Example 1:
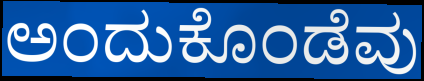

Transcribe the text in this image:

ಅಂದುಕೊಂಡೆವು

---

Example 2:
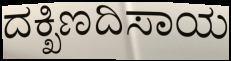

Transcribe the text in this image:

ದಕ್ಖಿಣದಿಸಾಯ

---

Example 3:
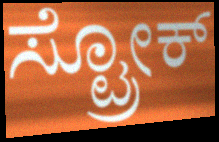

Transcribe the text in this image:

ಸ್ಟ್ರೋಕ್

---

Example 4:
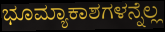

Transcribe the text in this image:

ಭೂಮ್ಯಾಕಾಶಗಳನ್ನೆಲ್ಲ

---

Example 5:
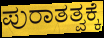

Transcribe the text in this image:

ಪುರಾತತ್ವಕ್ಕೆ